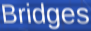
Bridges